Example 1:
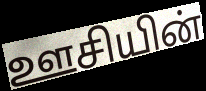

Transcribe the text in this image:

ஊசியின்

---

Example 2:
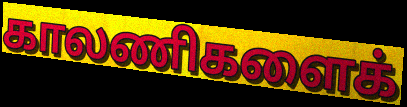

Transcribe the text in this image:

காலணிகளைக்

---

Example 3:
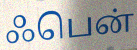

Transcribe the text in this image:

ஃபென்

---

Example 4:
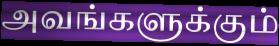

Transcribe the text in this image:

அவங்களுக்கும்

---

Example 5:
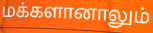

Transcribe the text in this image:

மக்களானாலும்